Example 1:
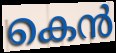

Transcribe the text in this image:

കെൻ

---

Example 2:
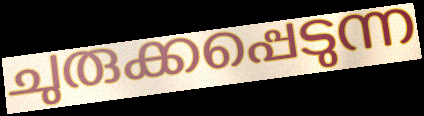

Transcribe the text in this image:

ചുരുക്കപ്പെടുന്ന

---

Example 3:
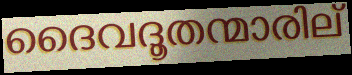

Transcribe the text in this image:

ദൈവദൂതന്മാരില്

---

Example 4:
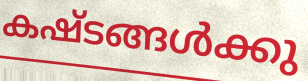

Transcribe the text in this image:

കഷ്ടങ്ങൾക്കു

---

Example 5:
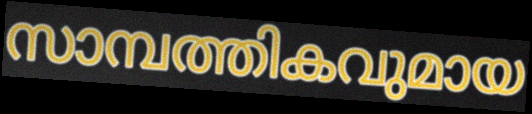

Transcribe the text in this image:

സാമ്പത്തികവുമായ